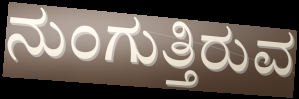
ನುಂಗುತ್ತಿರುವ